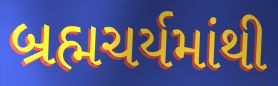
બ્રહ્મચર્યમાંથી